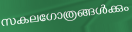
സകലഗോത്രങ്ങൾക്കും